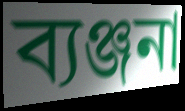
ব্যঞ্জনা